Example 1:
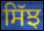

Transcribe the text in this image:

ਸਿੱਝ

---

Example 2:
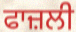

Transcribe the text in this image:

ਫਾਜ਼ਲੀ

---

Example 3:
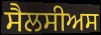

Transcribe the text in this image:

ਸੈਲਸੀਅਸ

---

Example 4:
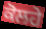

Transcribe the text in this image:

ਕੋਲਹੇ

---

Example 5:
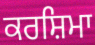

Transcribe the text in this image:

ਕਰਸ਼ਿਮਾ